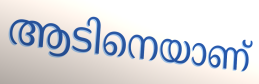
ആടിനെയാണ്